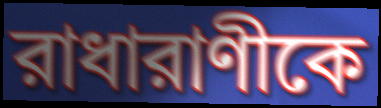
রাধারাণীকে